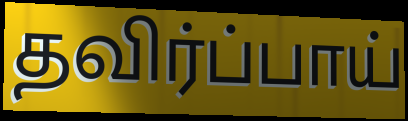
தவிர்ப்பாய்